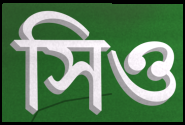
সিও